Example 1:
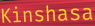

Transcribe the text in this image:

Kinshasa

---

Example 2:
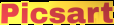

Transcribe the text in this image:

Picsart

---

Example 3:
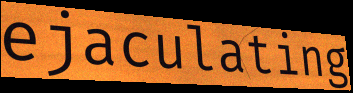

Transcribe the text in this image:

ejaculating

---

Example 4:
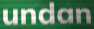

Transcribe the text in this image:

undan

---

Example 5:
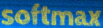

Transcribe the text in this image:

softmax